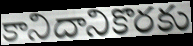
కానిదానికొరకు